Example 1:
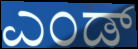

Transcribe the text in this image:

ಎಂಡ್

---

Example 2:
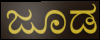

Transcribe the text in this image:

ಜೂಡ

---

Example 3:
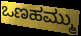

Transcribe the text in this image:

ಒಣಹಮ್ಮು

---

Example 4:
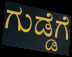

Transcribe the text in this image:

ಗುಡ್ಡೆಗೆ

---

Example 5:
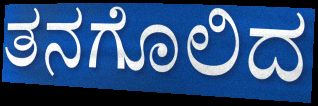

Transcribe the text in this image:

ತನಗೊಲಿದ